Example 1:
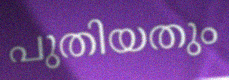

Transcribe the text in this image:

പുതിയതും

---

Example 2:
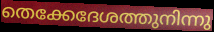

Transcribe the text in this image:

തെക്കേദേശത്തുനിന്നു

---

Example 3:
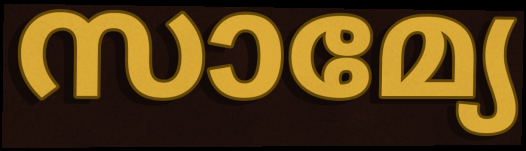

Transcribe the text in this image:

സാമ്യേ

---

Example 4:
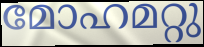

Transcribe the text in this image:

മോഹമറ്റു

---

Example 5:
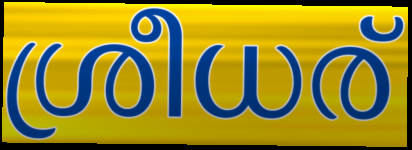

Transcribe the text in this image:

ശ്രീധര്